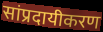
सांप्रदायीकरण